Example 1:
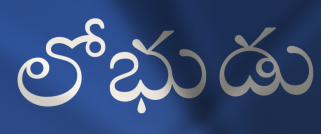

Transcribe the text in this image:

లోభుడు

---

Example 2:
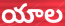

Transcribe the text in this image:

యాల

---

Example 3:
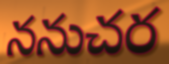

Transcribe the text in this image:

ననుచర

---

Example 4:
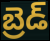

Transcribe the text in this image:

బ్రెడ్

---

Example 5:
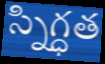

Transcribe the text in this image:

స్నిగ్ధత